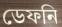
ডেফনি